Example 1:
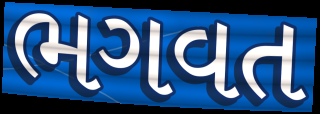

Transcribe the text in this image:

ભગવત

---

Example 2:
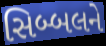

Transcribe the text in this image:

સિબ્બલને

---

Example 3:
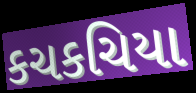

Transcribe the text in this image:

કચકચિયા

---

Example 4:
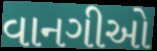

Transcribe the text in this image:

વાનગીઓ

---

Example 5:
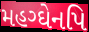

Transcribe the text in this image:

મહગ્ઘેનપિ